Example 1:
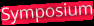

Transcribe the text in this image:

Symposium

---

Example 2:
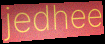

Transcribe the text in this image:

jedhee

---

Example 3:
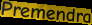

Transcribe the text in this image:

Premendra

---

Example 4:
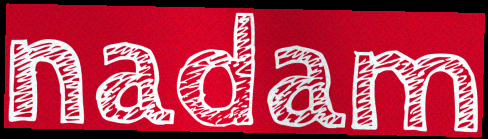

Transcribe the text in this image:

nadam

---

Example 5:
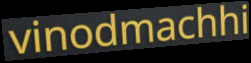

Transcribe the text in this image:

vinodmachhi